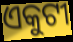
ଏକୁଟୀ